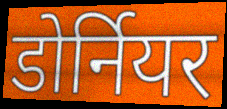
डोर्नियर